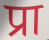
प्रा